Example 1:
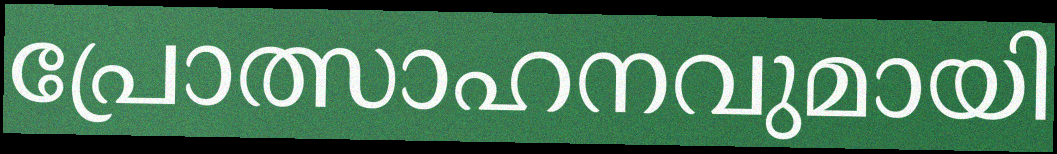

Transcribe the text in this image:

പ്രോത്സാഹനവുമായി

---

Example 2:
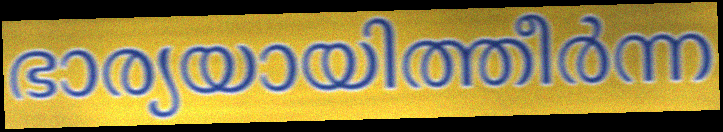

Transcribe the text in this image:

ഭാര്യയായിത്തീർന്ന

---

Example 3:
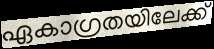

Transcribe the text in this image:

ഏകാഗ്രതയിലേക്ക്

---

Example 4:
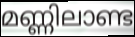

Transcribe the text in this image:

മണ്ണിലാണ്ട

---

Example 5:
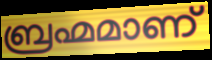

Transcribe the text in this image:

ബ്രഹ്മമാണ്